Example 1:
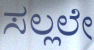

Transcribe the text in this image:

ಸಲ್ಲಲೇ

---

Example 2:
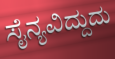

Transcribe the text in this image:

ಸೈನ್ಯವಿದ್ದುದು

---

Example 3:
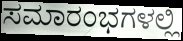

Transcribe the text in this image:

ಸಮಾರಂಭಗಳಲ್ಲಿ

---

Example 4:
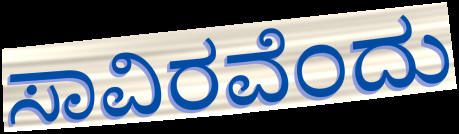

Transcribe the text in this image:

ಸಾವಿರವೆಂದು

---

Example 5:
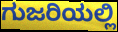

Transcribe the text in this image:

ಗುಜರಿಯಲ್ಲಿ